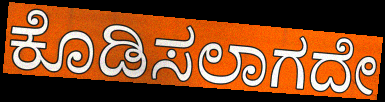
ಕೊಡಿಸಲಾಗದೇ